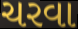
ચરવા